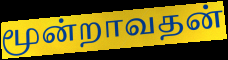
மூன்றாவதன்